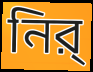
নির্